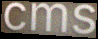
cms